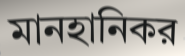
মানহানিকর